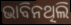
ଭାବିନଥିଲି